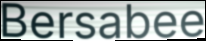
Bersabee